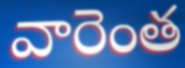
వారెంత